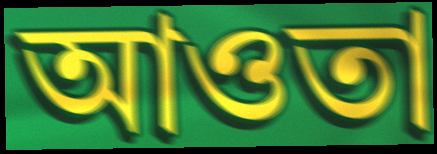
আওতা